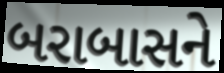
બરાબાસને